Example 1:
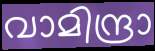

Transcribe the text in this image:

വാമിന്ദ്രാ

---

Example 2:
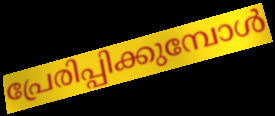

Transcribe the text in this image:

പ്രേരിപ്പിക്കുമ്പോൾ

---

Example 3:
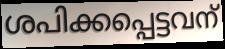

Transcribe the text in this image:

ശപിക്കപ്പെട്ടവന്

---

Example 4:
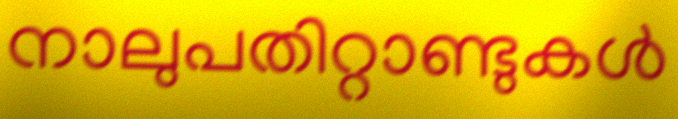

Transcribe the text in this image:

നാലുപതിറ്റാണ്ടുകൾ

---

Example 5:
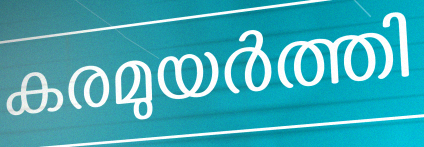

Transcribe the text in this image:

കരമുയർത്തി